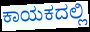
ಕಾಯಕದಲ್ಲಿ